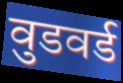
वुडवर्ड